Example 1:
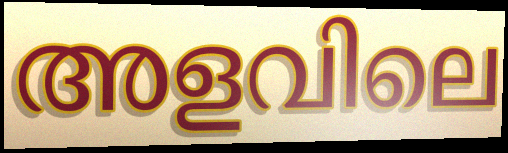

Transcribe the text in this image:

അളവിലെ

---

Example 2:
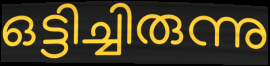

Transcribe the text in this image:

ഒട്ടിച്ചിരുന്നു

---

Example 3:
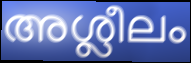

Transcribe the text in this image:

അശ്ലീലം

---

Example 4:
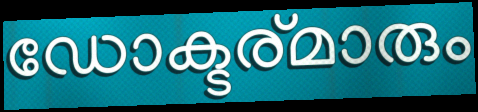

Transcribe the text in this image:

ഡോക്ടര്മാരും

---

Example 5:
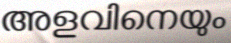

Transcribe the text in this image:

അളവിനെയും